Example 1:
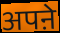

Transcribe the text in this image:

अपऩे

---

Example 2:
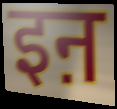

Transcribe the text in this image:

इऩ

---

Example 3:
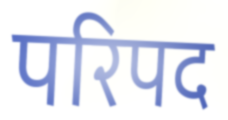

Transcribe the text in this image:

परिपद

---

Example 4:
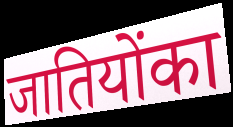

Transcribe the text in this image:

जातियोंका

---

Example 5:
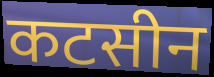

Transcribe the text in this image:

कटसीन